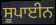
ਸੂਪਾਈਨ